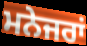
ਮਨੇਜਰਾਂ